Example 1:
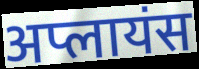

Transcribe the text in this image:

अप्लायंस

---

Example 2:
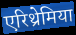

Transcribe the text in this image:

एरिथ्रेमिया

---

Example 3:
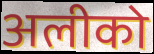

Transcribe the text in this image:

अलीको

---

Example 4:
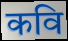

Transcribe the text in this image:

कवि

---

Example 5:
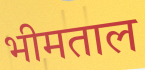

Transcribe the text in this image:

भीमताल